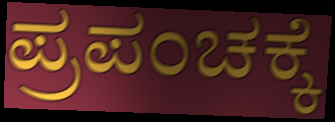
ಪ್ರಪಂಚಕ್ಕೆ